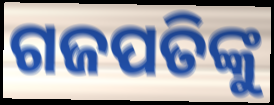
ଗଜପତିଙ୍କୁ